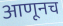
आणूनच